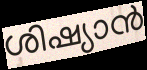
ശിഷ്യാൻ